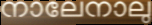
നാലേനാലു